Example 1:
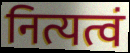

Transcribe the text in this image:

नित्यत्वं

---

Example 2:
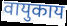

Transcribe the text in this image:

वायुकाय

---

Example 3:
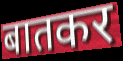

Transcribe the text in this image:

बातकर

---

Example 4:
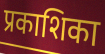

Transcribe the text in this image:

प्रकाशिका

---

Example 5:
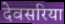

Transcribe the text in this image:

देवसरिया